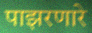
पाझरणारे